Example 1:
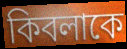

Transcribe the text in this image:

কিবলাকে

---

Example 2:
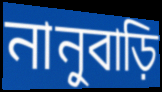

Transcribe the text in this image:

নানুবাড়ি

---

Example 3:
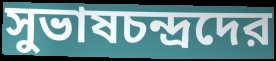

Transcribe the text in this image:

সুভাষচন্দ্রদের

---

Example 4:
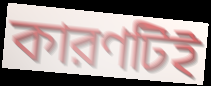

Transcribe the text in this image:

কারণটিই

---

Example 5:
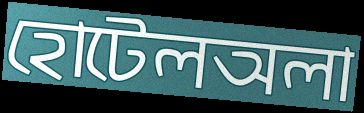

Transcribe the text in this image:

হোটেলঅলা